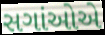
સગાંઓએ